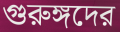
গুরুঙ্গদের